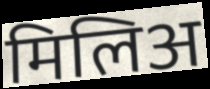
मिलिअ